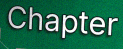
Chapter